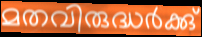
മതവിരുദ്ധർക്കു്